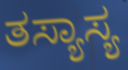
ತಸ್ಯಾಸ್ಯ